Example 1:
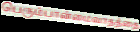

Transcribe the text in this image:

பெரும்பான்மைவாதத்தை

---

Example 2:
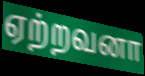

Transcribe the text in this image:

ஏற்றவனா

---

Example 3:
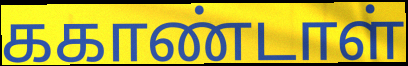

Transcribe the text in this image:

ககாண்டாள்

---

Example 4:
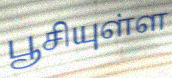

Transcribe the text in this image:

பூசியுள்ள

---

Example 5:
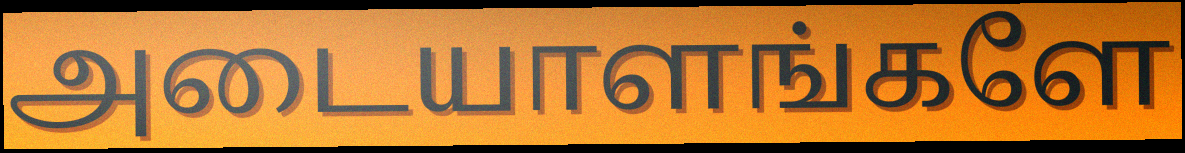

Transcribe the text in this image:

அடையாளங்களே